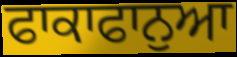
ਫਾਕਾਫਾਨੁਆ